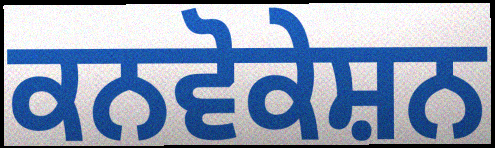
ਕਨਵੋਕੇਸ਼ਨ